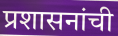
प्रशासनांची